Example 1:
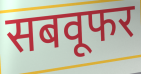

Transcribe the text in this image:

सबवूफर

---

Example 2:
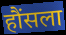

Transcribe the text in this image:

हौंसला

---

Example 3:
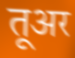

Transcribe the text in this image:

तूअर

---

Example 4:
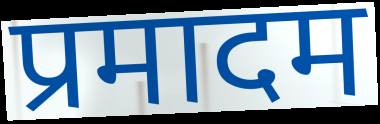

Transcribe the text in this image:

प्रमादम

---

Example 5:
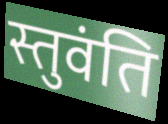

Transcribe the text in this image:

स्तुवंति